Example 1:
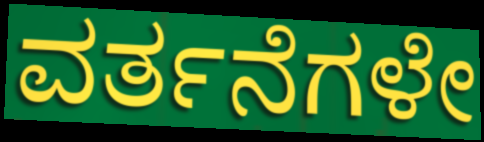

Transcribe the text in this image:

ವರ್ತನೆಗಳೇ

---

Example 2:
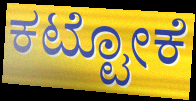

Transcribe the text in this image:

ಕಟ್ಟೋಕೆ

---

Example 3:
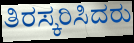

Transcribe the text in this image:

ತಿರಸ್ಕರಿಸಿದರು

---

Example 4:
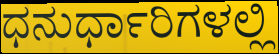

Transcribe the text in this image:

ಧನುರ್ಧಾರಿಗಳಲ್ಲಿ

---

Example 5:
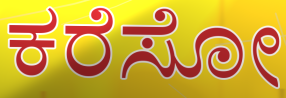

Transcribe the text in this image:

ಕರೆಸೋ